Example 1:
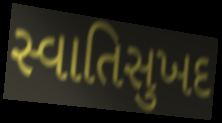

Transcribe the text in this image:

સ્વાતિસુખદ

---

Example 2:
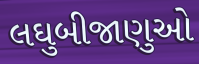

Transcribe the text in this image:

લઘુબીજાણુઓ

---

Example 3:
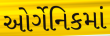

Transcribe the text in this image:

ઓર્ગેનિકમાં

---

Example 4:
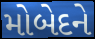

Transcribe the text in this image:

મોબેદને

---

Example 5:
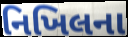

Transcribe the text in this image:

નિખિલના